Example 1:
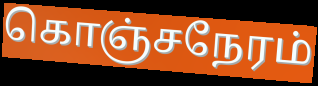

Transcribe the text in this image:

கொஞ்சநேரம்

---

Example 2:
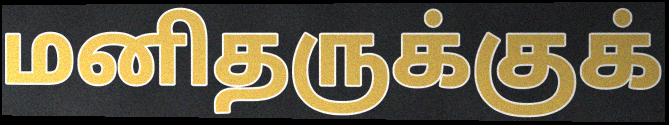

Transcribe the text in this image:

மனிதருக்குக்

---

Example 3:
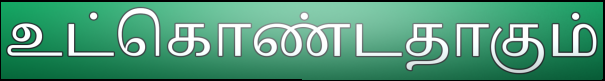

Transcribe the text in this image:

உட்கொண்டதாகும்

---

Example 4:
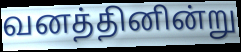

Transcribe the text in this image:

வனத்தினின்று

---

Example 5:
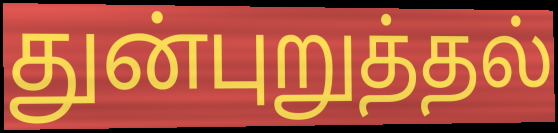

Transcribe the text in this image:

துன்புறுத்தல்